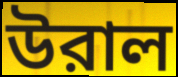
উরাল